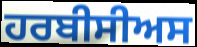
ਹਰਬੀਸੀਅਸ